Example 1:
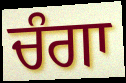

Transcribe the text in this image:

ਚੰਗਾ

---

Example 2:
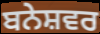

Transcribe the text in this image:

ਬਨੇਸ਼ਵਰ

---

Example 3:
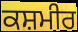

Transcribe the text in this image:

ਕਸ਼ਮੀਰ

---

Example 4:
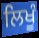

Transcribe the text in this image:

ਲਿਖੂੰ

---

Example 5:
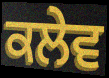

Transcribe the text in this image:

ਕਲੇਵ